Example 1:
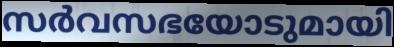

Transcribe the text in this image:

സർവസഭയോടുമായി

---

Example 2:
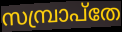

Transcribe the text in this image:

സമ്പ്രാപ്തേ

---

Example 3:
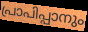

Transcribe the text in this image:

പ്രാപിപ്പാനും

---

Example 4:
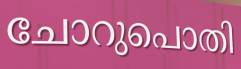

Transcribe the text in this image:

ചോറുപൊതി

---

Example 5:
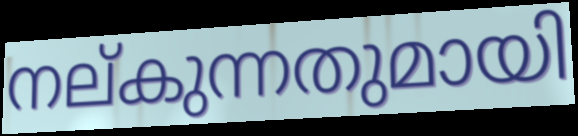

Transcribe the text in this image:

നല്കുന്നതുമായി